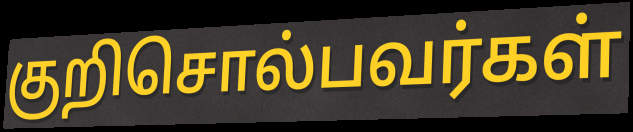
குறிசொல்பவர்கள்